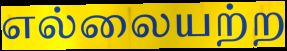
எல்லையற்ற